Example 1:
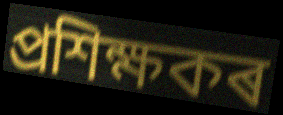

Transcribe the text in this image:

প্ৰশিক্ষকৰ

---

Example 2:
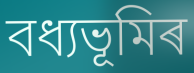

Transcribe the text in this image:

বধ্যভূমিৰ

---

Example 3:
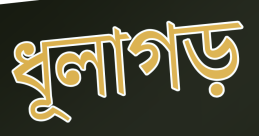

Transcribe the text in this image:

ধূলাগড়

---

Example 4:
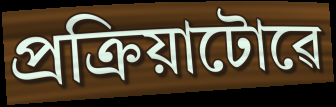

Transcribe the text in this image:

প্ৰক্ৰিয়াটোৱে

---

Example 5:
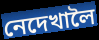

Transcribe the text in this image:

নেদেখালৈ